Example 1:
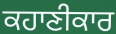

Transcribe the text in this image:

ਕਹਾਣੀਕਾਰ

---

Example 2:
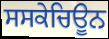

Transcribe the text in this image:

ਸਸਕੇਚਿਊਨ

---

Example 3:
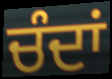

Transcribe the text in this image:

ਚੰਦਾਂ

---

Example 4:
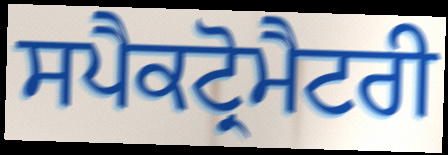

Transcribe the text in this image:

ਸਪੈਕਟ੍ਰੋਮੈਟਰੀ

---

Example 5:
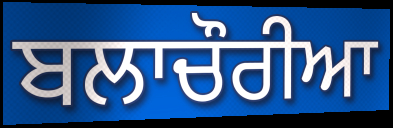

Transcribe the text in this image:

ਬਲਾਚੌਰੀਆ